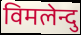
विमलेन्दु